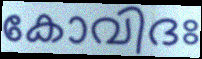
കോവിദഃ